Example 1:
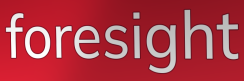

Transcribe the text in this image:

foresight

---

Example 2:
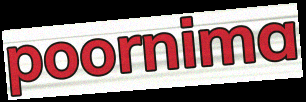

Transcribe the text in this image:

poornima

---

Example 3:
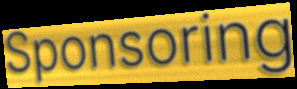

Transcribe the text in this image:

Sponsoring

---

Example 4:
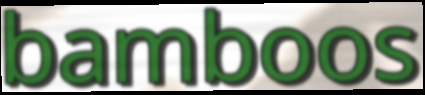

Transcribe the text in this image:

bamboos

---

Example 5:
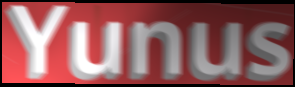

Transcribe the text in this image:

Yunus